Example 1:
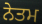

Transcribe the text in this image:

ਨੇਤਮ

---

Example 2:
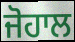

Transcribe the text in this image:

ਜੋਹਾਲ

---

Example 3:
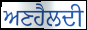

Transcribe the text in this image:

ਅਣਹੈਲਦੀ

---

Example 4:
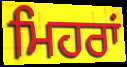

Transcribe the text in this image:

ਮਿਹਰਾਂ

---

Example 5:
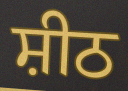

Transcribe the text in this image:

ਸ਼ੀਠ